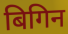
बिगिन